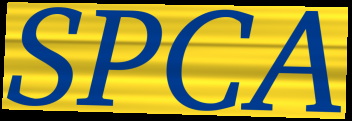
SPCA